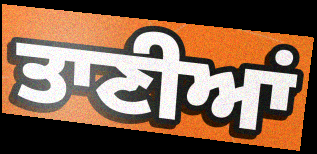
ਤਾਣੀਆਂ